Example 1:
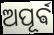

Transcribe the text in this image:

ଅପୂର୍ଵ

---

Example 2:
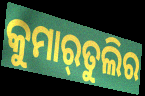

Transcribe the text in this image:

କୁମାର୍‌ତୁଲିର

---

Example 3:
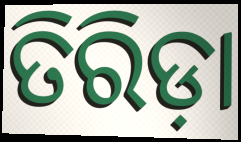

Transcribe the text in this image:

ତିରିଡ଼ା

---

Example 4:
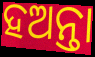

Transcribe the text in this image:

ହଅନ୍ତା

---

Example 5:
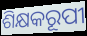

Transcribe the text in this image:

ଶିକ୍ଷକରୂପୀ